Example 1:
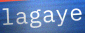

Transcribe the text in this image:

lagaye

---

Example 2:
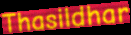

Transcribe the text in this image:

Thasildhar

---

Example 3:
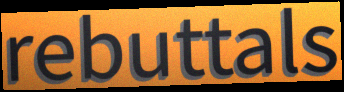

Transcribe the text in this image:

rebuttals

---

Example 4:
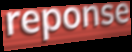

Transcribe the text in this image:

reponse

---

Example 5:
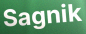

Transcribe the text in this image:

Sagnik